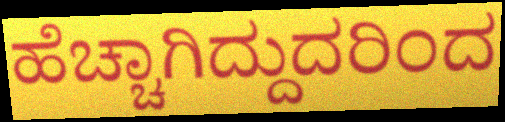
ಹೆಚ್ಚಾಗಿದ್ದುದರಿಂದ